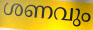
ശണവും